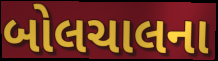
બોલચાલના